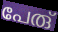
പേരു്